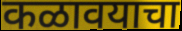
कळावयाचा